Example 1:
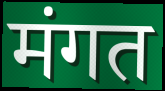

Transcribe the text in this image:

मंगत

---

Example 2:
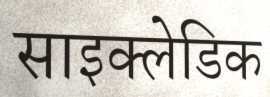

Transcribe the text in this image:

साइक्लेडिक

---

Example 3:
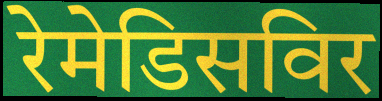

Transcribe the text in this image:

रेमेडिसविर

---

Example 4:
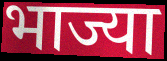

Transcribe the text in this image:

भाज्या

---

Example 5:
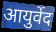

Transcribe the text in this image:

आयुर्वेद